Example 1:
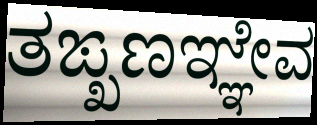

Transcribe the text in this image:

ತಙ್ಖಣಞ್ಞೇವ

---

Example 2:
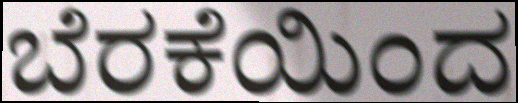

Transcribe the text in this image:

ಬೆರಕೆಯಿಂದ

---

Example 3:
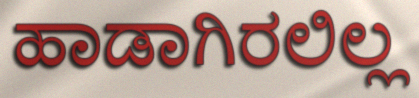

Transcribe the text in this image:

ಹಾಡಾಗಿರಲಿಲ್ಲ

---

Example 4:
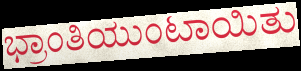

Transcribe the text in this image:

ಭ್ರಾಂತಿಯುಂಟಾಯಿತು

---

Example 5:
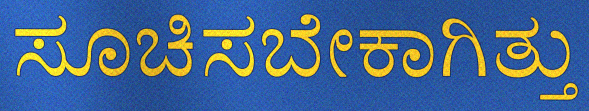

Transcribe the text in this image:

ಸೂಚಿಸಬೇಕಾಗಿತ್ತು